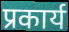
प्रकार्य